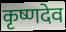
कृष्णदेव